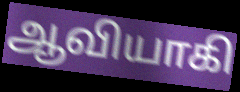
ஆவியாகி